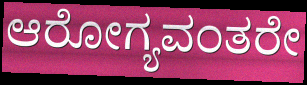
ಆರೋಗ್ಯವಂತರೇ